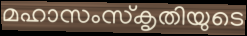
മഹാസംസ്കൃതിയുടെ